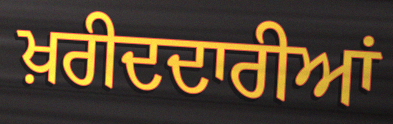
ਖ਼ਰੀਦਦਾਰੀਆਂ